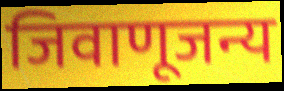
जिवाणूजन्य